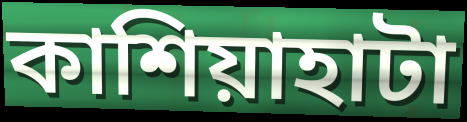
কাশিয়াহাটা